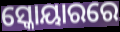
ସ୍କୋୟାରରେ